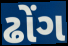
ઢોંગ